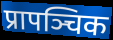
प्रापञ्चिक